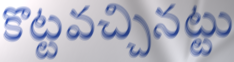
కొట్టవచ్చినట్టు